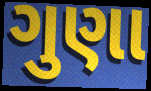
ગુણા